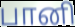
பானி